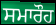
ਸਮਾਰੌਹ